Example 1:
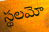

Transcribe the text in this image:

స్థలమో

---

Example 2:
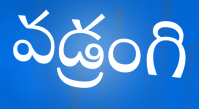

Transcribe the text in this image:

వడ్రంగి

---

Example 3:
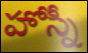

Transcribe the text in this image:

హోస్నీ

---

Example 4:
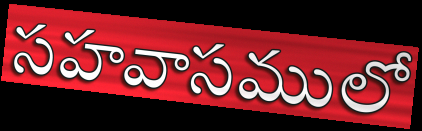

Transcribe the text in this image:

సహవాసములో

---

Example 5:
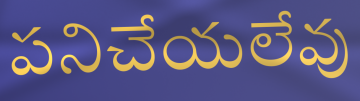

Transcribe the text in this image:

పనిచేయలేవు